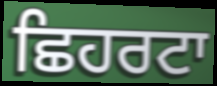
ਛਿਹਰਟਾ